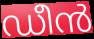
ഡീൻ